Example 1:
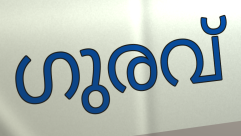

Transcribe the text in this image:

ഗുരവ്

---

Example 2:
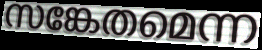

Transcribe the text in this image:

സങ്കേതമെന്ന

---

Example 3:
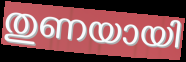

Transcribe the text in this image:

തുണയായി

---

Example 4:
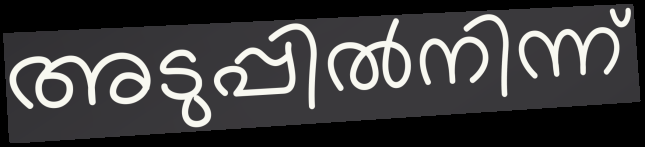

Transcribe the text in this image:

അടുപ്പിൽനിന്ന്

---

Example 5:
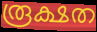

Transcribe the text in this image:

രൂക്ഷത